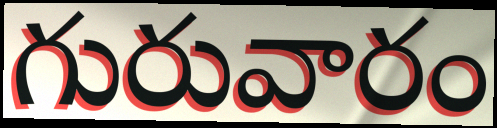
గురువారం